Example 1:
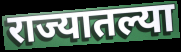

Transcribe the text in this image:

राज्यातल्या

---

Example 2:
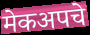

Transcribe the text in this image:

मेकअपचे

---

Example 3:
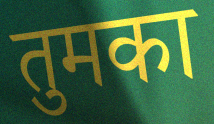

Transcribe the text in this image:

तुमका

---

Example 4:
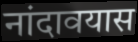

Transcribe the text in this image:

नांदावयास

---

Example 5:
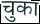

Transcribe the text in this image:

चुका